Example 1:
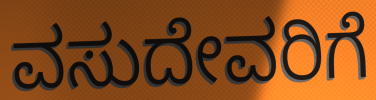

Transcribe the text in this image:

ವಸುದೇವರಿಗೆ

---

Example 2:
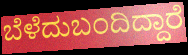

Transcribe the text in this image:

ಬೆಳೆದುಬಂದಿದ್ದಾರೆ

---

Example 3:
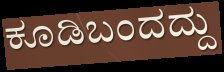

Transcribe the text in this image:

ಕೂಡಿಬಂದದ್ದು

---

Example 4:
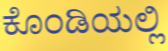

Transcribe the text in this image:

ಕೊಂಡಿಯಲ್ಲಿ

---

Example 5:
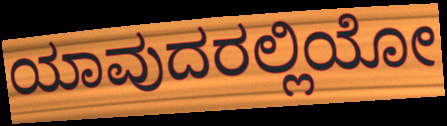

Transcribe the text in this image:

ಯಾವುದರಲ್ಲಿಯೋ